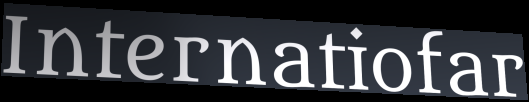
Internatiofar